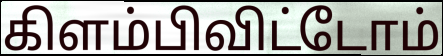
கிளம்பிவிட்டோம்